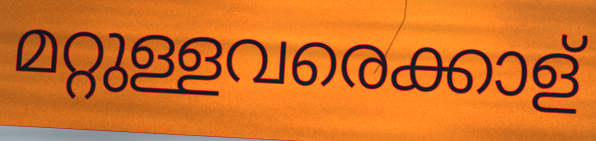
മറ്റുള്ളവരെക്കാള്